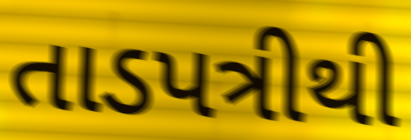
તાડપત્રીથી